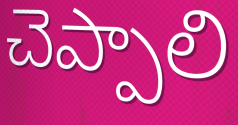
చెప్పాలి